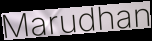
Marudhan